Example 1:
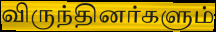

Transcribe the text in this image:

விருந்தினர்களும்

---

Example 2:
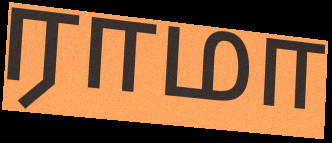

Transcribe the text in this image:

ராமா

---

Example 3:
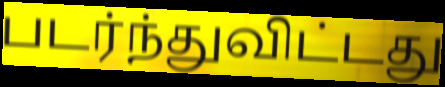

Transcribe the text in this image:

படர்ந்துவிட்டது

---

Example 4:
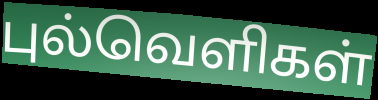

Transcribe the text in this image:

புல்வெளிகள்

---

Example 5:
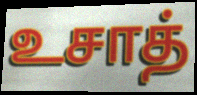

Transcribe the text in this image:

உசாத்